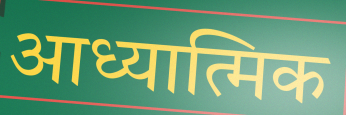
आध्यात्मिक